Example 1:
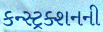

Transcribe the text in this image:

કન્સ્ટ્રક્શનની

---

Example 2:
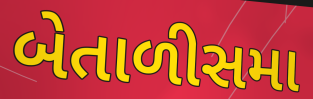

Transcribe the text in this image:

બેતાળીસમા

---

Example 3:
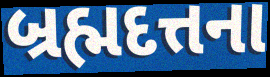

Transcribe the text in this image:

બ્રહ્મદત્તના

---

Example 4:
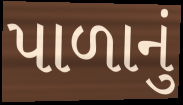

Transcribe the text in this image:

પાળાનું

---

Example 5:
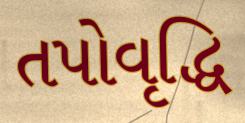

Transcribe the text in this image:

તપોવૃદ્ધિ